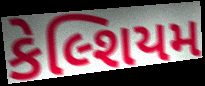
કેલ્શિયમ